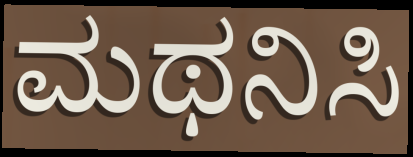
ಮಥನಿಸಿ